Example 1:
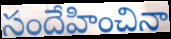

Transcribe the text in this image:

సందేహించినా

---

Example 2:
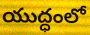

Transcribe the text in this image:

యుద్ధంలో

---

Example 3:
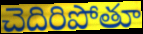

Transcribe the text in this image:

చెదిరిపోతూ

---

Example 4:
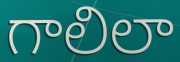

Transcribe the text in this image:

గాలిలా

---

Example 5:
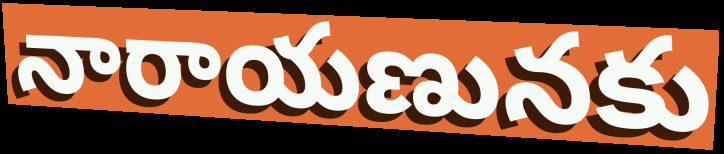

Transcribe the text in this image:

నారాయణునకు